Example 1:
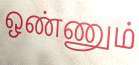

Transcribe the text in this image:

ஒண்ணும்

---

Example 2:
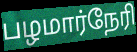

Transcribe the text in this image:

பழமார்நேரி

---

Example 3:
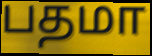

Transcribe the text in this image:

பதமா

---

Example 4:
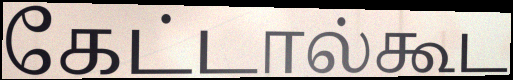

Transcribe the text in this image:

கேட்டால்கூட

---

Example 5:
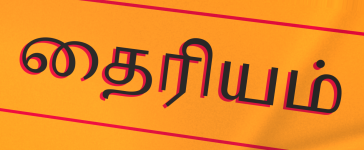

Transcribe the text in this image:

தைரியம்